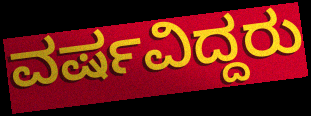
ವರ್ಷವಿದ್ದರು